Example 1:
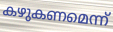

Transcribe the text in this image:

കഴുകണമെന്ന്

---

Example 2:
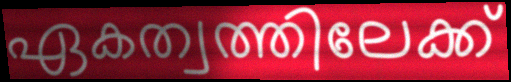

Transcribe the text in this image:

ഏകത്വത്തിലേക്ക്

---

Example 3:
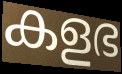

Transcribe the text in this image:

കളഭ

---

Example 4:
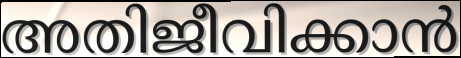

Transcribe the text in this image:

അതിജീവിക്കാൻ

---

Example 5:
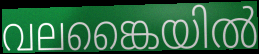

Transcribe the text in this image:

വലങ്കൈയിൽ